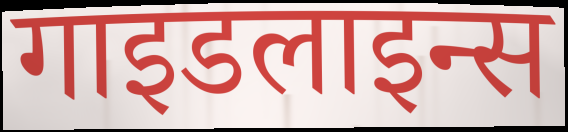
गाइडलाइन्स